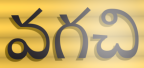
వగచి